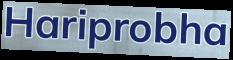
Hariprobha